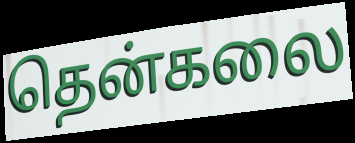
தென்கலை